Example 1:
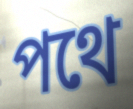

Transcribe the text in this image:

পথে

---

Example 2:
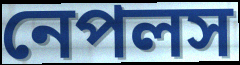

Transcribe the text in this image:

নেপলস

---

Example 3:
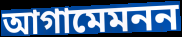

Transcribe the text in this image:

আগামেমনন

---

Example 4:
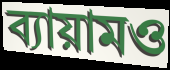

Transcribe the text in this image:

ব্যায়ামও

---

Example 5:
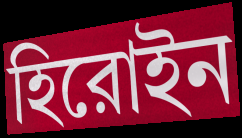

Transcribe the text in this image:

হিরোইন